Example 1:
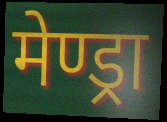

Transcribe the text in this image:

मेण्ड्रा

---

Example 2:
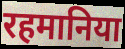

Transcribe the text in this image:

रहमानिया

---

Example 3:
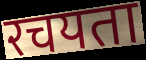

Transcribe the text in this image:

रचयता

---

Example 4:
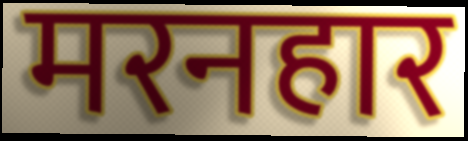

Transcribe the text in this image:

मरनहार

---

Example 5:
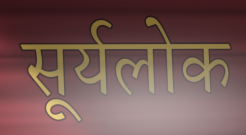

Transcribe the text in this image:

सूर्यलोक